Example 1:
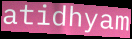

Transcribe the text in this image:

atidhyam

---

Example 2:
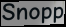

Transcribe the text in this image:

Snopp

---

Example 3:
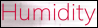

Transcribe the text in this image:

Humidity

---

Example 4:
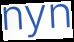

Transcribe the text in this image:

nyn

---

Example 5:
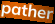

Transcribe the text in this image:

pather